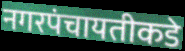
नगरपंचायतीकडे